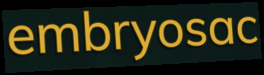
embryosac